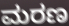
ಮರಣ